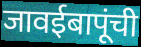
जावईबापूंची